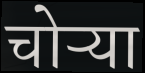
चोऱ्या